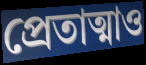
প্রেতাত্মাও